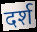
दर्श